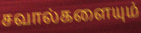
சவால்களையும்